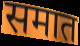
समात